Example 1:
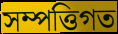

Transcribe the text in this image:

সম্পত্তিগত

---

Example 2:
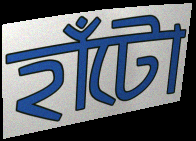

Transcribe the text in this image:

হাঁটো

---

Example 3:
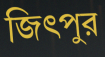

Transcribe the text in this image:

জিৎপুর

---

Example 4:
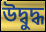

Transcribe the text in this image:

উদ্বুদ্ধ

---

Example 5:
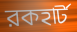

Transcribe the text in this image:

রকহার্ট